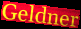
Geldner